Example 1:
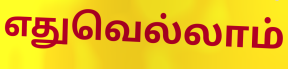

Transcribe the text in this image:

எதுவெல்லாம்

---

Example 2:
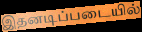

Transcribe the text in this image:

இதனடிப்படையில்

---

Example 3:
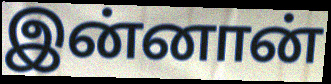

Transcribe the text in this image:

இன்னான்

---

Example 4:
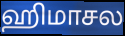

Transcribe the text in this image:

ஹிமாசல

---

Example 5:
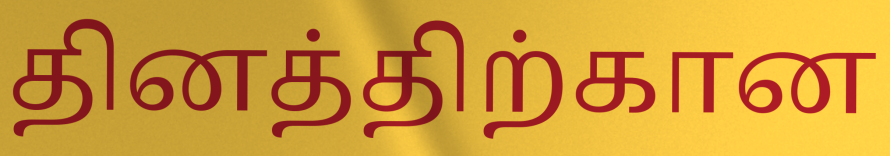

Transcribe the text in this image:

தினத்திற்கான